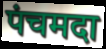
पंचमदा